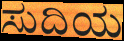
ಸುದಿಯ